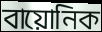
বায়োনিক